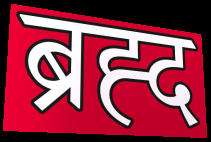
ब्रह्द